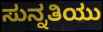
ಸುನ್ನತಿಯು